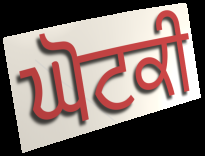
ਘੋਟਕੀ